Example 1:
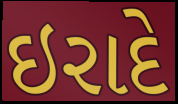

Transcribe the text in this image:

ઇરાદે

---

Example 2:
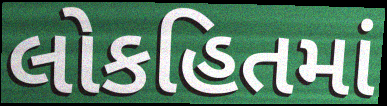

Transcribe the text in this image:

લોકહિતમાં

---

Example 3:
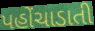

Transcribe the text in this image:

પહોંચાડાતી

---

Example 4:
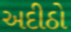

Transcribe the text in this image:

અદીઠો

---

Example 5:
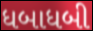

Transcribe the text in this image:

ધબાધબી